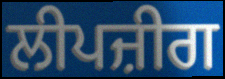
ਲੀਪਜ਼ੀਗ